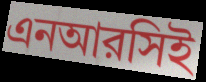
এনআরসিই